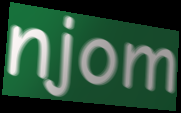
njom